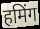
हमिंग